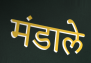
मंडाले